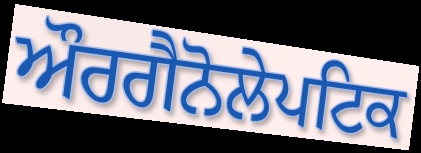
ਔਰਗੈਨੋਲੇਪਟਿਕ